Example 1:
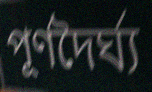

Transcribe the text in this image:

পূর্ণদৈর্ঘ্য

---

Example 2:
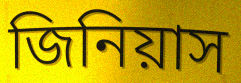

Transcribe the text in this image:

জিনিয়াস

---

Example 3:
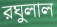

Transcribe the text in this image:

রঘুলাল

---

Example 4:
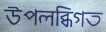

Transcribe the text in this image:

উপলব্ধিগত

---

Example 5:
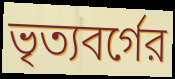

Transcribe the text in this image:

ভৃত্যবর্গের